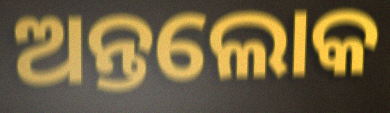
ଅନ୍ତଲୋକ